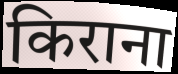
किराना